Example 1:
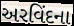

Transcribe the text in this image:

અરવિંદના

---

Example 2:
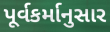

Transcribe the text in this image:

પૂર્વકર્માનુસાર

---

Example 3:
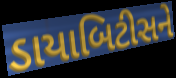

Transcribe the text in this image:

ડાયાબિટીસને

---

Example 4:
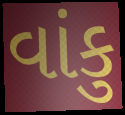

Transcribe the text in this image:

વાંકુ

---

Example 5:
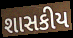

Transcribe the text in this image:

શાસકીય